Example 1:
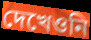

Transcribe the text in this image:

দেখেওনি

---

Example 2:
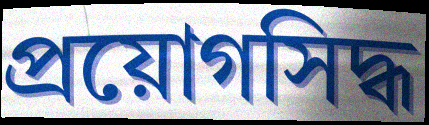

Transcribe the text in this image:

প্রয়োগসিদ্ধ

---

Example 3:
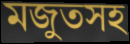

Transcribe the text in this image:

মজুতসহ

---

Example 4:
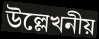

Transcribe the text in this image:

উল্লেখনীয়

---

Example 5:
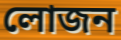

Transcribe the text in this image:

লোজন